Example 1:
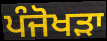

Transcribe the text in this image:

ਪੰਜੋਖੜਾ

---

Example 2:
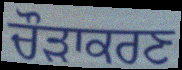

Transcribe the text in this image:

ਚੌੜਾਕਰਣ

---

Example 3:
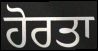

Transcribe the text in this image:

ਹੋਰਤਾ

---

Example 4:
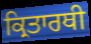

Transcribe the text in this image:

ਕ੍ਰਿਤਾਰਥੀ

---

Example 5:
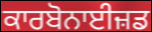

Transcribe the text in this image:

ਕਾਰਬੋਨਾਈਜ਼ਡ